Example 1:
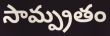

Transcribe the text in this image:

సామ్ప్రతం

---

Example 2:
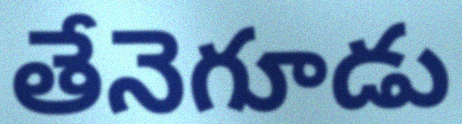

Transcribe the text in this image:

తేనెగూడు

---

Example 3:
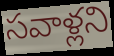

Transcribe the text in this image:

సవాళ్లని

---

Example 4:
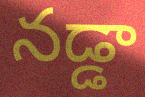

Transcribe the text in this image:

నడ్డా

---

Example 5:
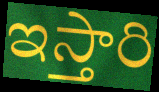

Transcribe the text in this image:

ఇస్తారి